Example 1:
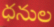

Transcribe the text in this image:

ధనుల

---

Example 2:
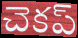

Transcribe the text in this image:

చెకప్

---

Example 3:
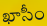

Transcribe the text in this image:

ఖాసీం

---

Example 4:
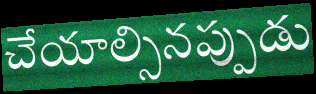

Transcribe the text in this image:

చేయాల్సినప్పుడు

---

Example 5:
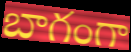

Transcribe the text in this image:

బాగంగా